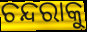
ଚନ୍ଦରାକୁ